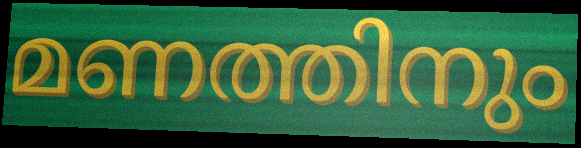
മണത്തിനും